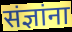
संज्ञांना